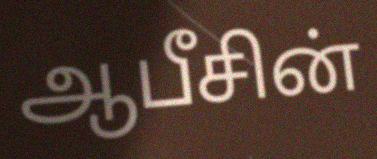
ஆபீசின்